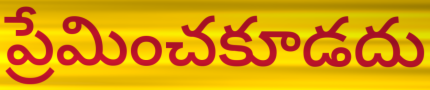
ప్రేమించకూడదు